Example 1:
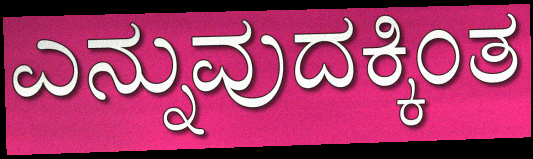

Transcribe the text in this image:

ಎನ್ನುವುದಕ್ಕಿಂತ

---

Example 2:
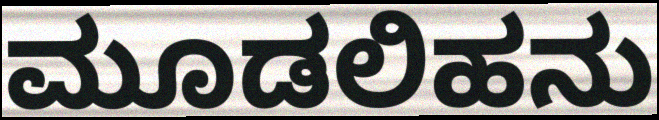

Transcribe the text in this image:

ಮೂಡಲಿಹನು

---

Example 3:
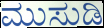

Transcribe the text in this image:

ಮುಸುಡಿ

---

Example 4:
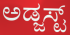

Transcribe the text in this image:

ಅಡ್ಜಸ್ಟ್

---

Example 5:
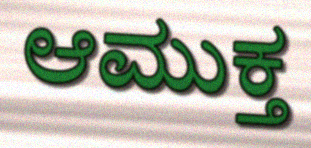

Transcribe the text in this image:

ಆಮುಕ್ತ